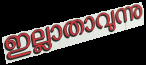
ഇല്ലാതാവുന്നു